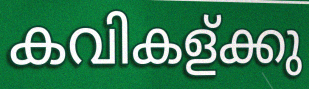
കവികള്ക്കു